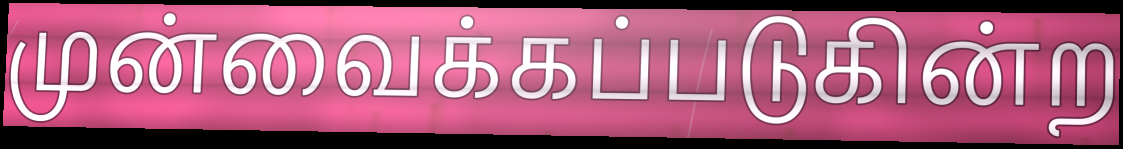
முன்வைக்கப்படுகின்ற